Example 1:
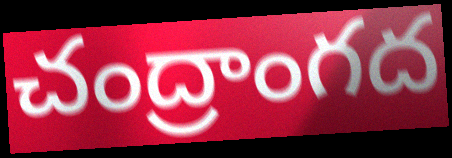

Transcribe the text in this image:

చంద్రాంగద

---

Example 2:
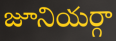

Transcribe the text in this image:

జూనియర్గా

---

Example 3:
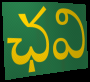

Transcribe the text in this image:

ఛవి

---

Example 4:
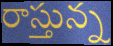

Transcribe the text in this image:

రాస్తున్న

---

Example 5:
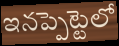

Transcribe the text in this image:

ఇనప్పెట్టెలో